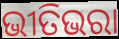
ଭୀତିଭରା